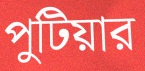
পুটিয়ার